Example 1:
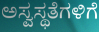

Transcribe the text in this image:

ಅಸ್ವಸ್ಥತೆಗಳಿಗೆ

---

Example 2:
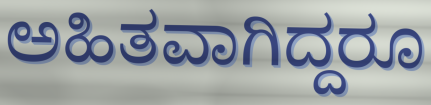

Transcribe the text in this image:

ಅಹಿತವಾಗಿದ್ದರೂ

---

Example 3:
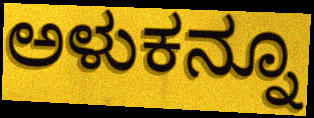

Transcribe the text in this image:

ಅಳುಕನ್ನೂ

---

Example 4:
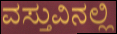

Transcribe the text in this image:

ವಸ್ತುವಿನಲ್ಲಿ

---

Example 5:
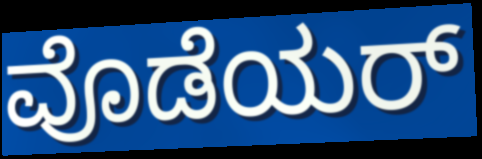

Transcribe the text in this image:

ವೊಡೆಯರ್